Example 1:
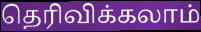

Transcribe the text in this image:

தெரிவிக்கலாம்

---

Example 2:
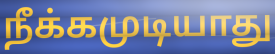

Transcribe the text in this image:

நீக்கமுடியாது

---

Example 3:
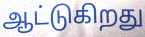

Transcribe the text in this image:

ஆட்டுகிறது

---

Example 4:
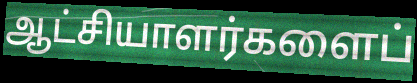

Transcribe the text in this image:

ஆட்சியாளர்களைப்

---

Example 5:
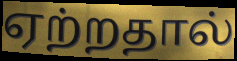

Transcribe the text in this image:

ஏற்றதால்